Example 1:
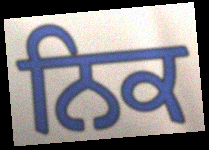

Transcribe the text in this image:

ਨਿਕ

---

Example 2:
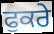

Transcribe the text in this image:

ਫੁਕਰੇ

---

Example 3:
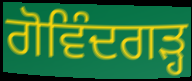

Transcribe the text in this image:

ਗੋਵਿੰਦਗੜ੍ਹ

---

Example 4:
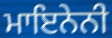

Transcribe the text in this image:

ਮਾਇਨੇਨੀ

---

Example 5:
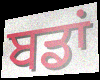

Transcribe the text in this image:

ਬਡਾਂ